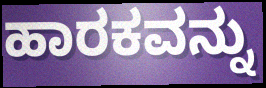
ಹಾರಕವನ್ನು